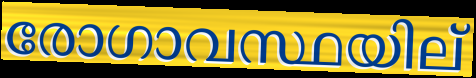
രോഗാവസ്ഥയില്